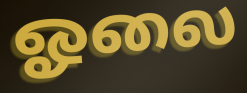
ஓலை